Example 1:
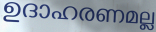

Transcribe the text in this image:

ഉദാഹരണമല്ല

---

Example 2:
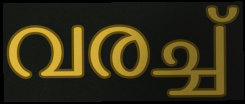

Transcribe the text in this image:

വരച്ച്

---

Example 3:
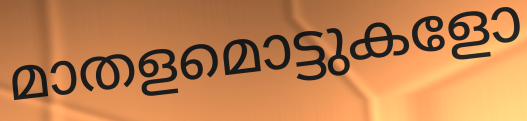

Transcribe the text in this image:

മാതളമൊട്ടുകളോ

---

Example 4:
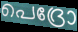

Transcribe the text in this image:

പെദ്രോ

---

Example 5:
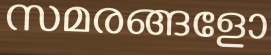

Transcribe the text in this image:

സമരങ്ങളോ